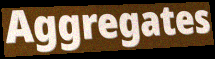
Aggregates